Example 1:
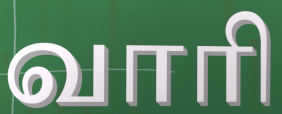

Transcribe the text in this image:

வாரி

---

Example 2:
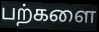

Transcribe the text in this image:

பற்களை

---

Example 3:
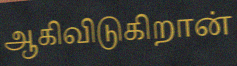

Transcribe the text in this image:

ஆகிவிடுகிறான்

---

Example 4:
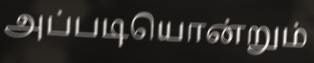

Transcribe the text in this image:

அப்படியொன்றும்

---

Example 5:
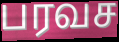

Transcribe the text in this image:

பரவச